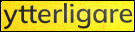
ytterligare